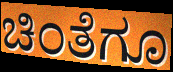
ಚಿಂತೆಗೂ